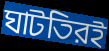
ঘাটতিরই